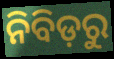
ନିବିଡ଼ରୁ